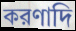
করণাদি